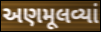
અણમૂલવ્યાં